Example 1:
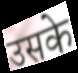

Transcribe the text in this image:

उसके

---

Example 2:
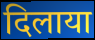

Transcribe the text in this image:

दिलाया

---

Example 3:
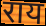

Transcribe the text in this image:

राय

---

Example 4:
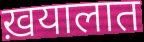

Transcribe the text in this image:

ख़यालात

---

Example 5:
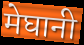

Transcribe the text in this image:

मेघानी